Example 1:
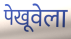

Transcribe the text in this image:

पेखूवेला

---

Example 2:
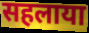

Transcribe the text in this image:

सहलाया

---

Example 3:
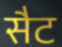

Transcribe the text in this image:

सैट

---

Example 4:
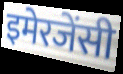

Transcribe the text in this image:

इमेरजेंसी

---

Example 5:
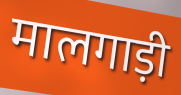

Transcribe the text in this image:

मालगाड़ी